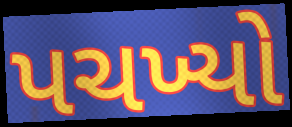
પચખ્યો